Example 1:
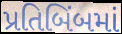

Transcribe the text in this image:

પ્રતિબિંબમાં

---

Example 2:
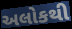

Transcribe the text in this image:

અલોકથી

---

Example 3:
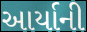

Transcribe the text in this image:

આર્યાની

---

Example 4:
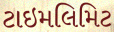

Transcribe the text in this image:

ટાઇમલિમિટ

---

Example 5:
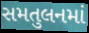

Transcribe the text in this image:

સમતુલનમાં